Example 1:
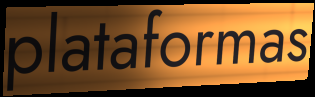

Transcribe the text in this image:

plataformas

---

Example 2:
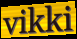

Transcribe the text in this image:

vikki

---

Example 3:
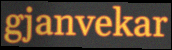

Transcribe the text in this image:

gjanvekar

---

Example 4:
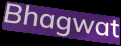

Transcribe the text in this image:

Bhagwat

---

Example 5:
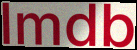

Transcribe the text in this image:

Imdb